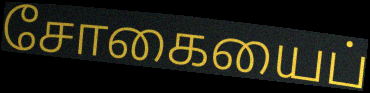
சோகையைப்